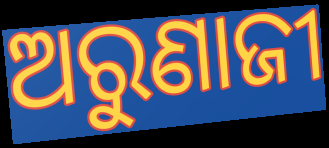
ଅରୁଣାଜୀ